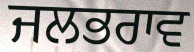
ਜਲਭਰਾਵ